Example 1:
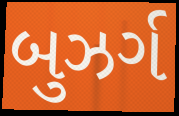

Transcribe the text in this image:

બુઝર્ગ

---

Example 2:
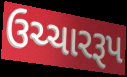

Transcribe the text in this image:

ઉચ્ચારરૂપ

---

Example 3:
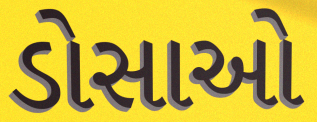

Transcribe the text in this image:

ડોસાઓ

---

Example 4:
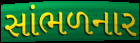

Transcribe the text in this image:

સાંભળનાર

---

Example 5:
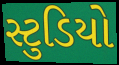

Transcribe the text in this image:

સ્ટુડિયો